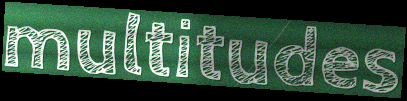
multitudes